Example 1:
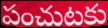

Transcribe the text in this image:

పంచుటకు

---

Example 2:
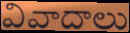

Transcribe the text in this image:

వివాదాలు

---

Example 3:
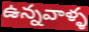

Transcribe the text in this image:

ఉన్నవాళ్ళ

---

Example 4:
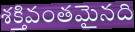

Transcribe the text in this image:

శక్తివంతమైనది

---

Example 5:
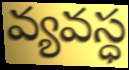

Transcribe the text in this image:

వ్యవస్ధ